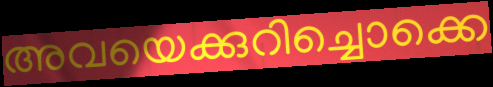
അവയെക്കുറിച്ചൊക്കെ